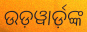
ଉଡ଼ୱାର୍ଡ଼ଙ୍କ